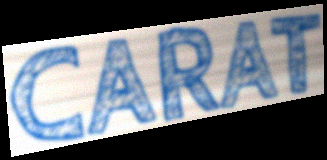
CARAT